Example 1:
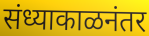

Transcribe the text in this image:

संध्याकाळनंतर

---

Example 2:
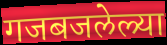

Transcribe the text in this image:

गजबजलेल्या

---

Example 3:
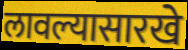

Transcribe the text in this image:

लावल्यासारखे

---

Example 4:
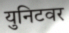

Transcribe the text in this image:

युनिटवर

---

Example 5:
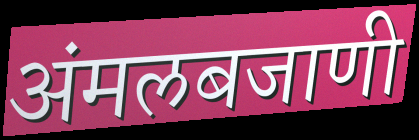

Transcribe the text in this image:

अंमलबजाणी